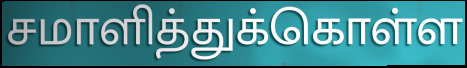
சமாளித்துக்கொள்ள